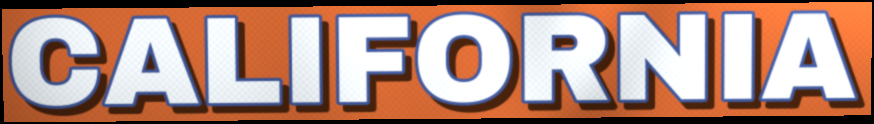
CALIFORNIA